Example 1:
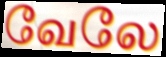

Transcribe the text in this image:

வேலே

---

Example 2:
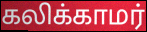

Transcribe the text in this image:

கலிக்காமர்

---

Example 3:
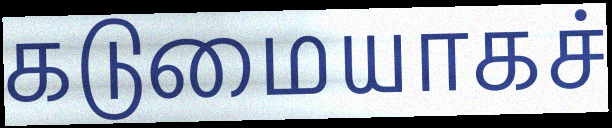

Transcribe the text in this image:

கடுமையாகச்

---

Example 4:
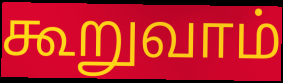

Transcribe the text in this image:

கூறுவாம்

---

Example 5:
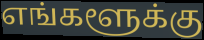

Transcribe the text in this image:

எங்களூக்கு